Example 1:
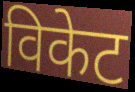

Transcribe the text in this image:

विकेट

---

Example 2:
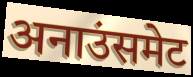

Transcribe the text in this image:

अनाउंसमेट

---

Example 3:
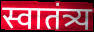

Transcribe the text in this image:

स्वातंत्र्य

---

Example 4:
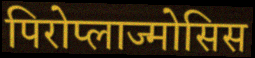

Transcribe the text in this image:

पिरोप्लाज्मोसिस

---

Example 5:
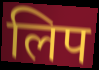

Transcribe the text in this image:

लिप